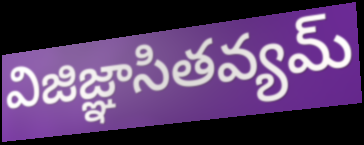
విజిజ్ఞాసితవ్యమ్